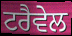
ਟਰੈਵੇਲ